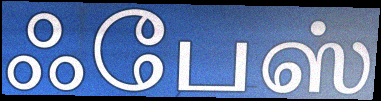
ஃபேஸ்